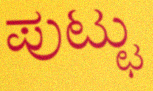
ಪುಟ್ಟು